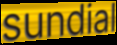
sundial